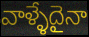
వాళ్ళేదైనా